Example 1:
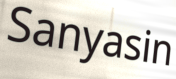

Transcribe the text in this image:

Sanyasin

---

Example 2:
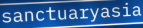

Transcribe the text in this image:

sanctuaryasia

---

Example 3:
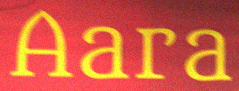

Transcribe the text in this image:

Aara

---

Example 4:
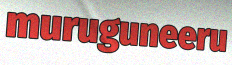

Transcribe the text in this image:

muruguneeru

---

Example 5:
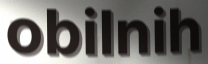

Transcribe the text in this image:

obilnih